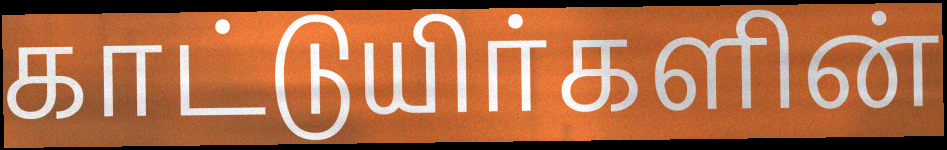
காட்டுயிர்களின்